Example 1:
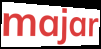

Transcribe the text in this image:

majar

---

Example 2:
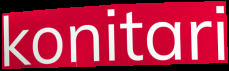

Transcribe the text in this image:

konitari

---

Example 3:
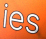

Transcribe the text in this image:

ies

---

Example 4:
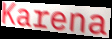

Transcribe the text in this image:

Karena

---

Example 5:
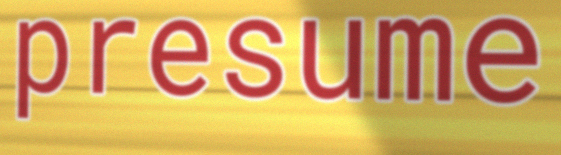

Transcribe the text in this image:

presume